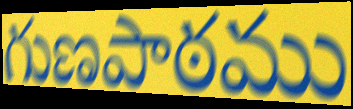
గుణపాఠము